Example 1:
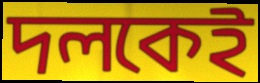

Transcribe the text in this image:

দলকেই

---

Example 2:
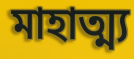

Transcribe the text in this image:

মাহাত্ম্য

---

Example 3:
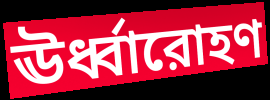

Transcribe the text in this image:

ঊর্ধ্বারোহণ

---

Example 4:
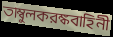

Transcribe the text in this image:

তাম্বুলকরঙ্কবাহিনী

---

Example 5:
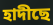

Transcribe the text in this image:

হাদীছে